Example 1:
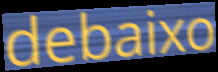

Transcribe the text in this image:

debaixo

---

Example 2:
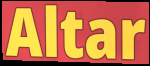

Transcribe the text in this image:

Altar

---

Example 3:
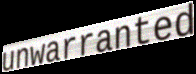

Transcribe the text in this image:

unwarranted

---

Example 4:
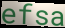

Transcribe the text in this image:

efsa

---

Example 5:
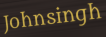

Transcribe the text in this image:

Johnsingh